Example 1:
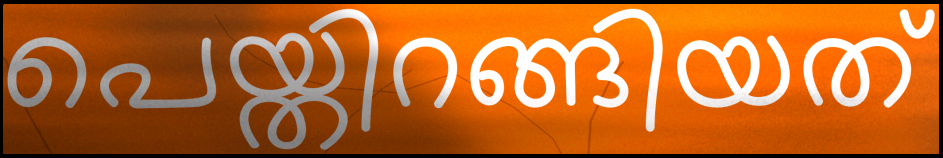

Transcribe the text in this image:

പെയ്തിറങ്ങിയത്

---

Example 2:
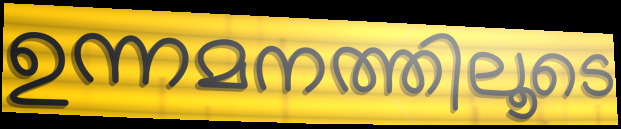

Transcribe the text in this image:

ഉന്നമനത്തിലൂടെ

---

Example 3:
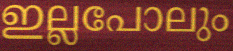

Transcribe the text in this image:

ഇല്ലപോലും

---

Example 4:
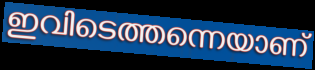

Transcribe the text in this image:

ഇവിടെത്തന്നെയാണ്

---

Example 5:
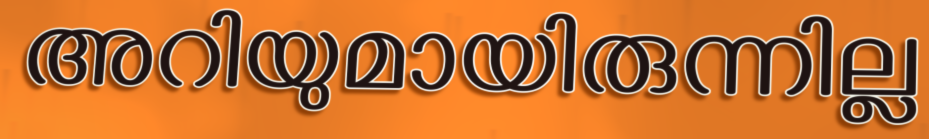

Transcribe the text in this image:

അറിയുമായിരുന്നില്ല